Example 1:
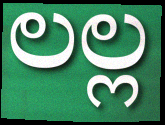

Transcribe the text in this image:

లల్ల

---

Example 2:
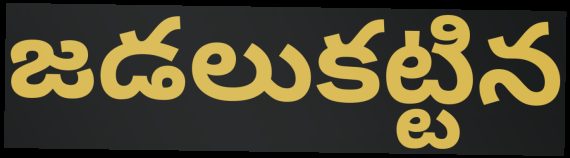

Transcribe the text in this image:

జడలుకట్టిన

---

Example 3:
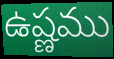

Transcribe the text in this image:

ఉష్ణము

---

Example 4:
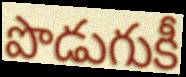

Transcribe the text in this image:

పొడుగుకీ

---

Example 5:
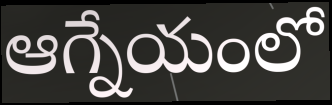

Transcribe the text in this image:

ఆగ్నేయంలో